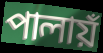
পালায়ঁ